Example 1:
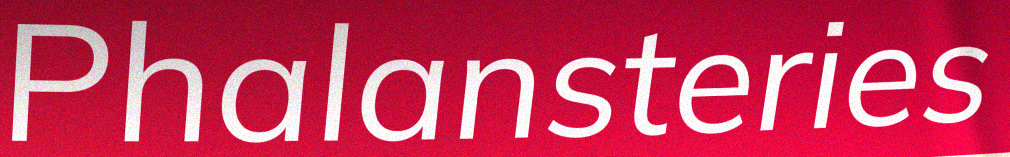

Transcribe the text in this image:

Phalansteries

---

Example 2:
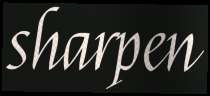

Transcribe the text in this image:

sharpen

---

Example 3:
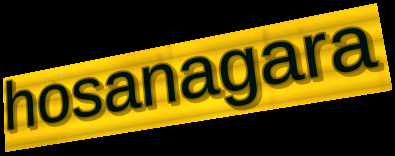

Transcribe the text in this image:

hosanagara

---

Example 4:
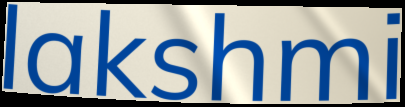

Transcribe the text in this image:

lakshmi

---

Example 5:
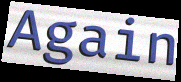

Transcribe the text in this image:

Again